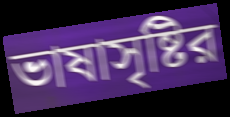
ভাষাসৃষ্টির